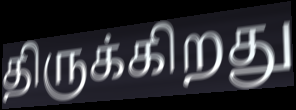
திருக்கிறது